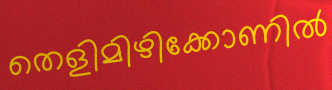
തെളിമിഴിക്കോണിൽ